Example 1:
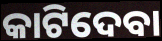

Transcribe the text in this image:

କାଟିଦେବା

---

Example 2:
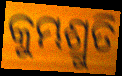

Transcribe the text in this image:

କୁମ୍ଭଶ୍ରୁତି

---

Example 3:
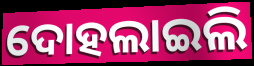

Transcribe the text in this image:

ଦୋହଲାଇଲି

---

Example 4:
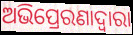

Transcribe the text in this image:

ଅଭିପ୍ରେରଣାଦ୍ୱାରା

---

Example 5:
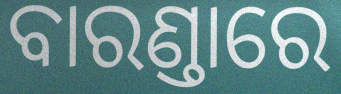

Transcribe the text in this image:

ବାରଣ୍ଡାରେ